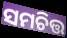
ସମଚିତ୍ତ